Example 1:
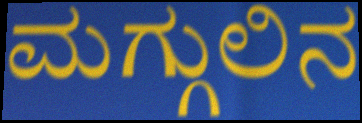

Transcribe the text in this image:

ಮಗ್ಗುಲಿನ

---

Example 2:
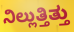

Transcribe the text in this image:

ನಿಲ್ಲುತ್ತಿತ್ತು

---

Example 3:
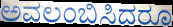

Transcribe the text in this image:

ಅವಲಂಬಿಸಿದರೂ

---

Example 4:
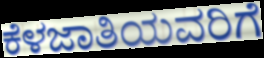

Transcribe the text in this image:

ಕೆಳಜಾತಿಯವರಿಗೆ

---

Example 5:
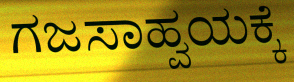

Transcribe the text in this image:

ಗಜಸಾಹ್ವಯಕ್ಕೆ